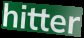
hitter